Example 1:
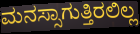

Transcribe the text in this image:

ಮನಸ್ಸಾಗುತ್ತಿರಲಿಲ್ಲ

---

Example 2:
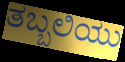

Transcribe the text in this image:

ತಬ್ಬಲಿಯು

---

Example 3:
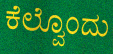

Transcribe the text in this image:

ಕೆಲ್ವೊಂದು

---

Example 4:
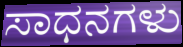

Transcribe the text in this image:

ಸಾಧನಗಳು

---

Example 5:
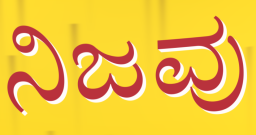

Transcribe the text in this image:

ನಿಜವು